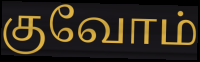
குவோம்